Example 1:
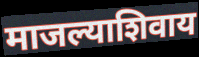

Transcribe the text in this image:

माजल्याशिवाय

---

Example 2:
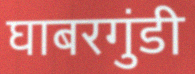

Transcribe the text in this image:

घाबरगुंडी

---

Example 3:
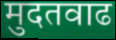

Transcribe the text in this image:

मुदतवाढ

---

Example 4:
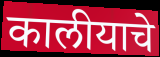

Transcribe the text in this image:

कालीयाचे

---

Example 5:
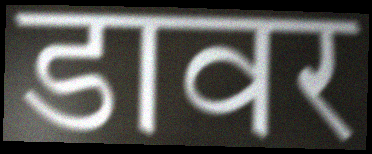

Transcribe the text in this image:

डावर